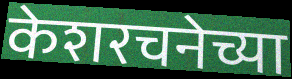
केशरचनेच्या